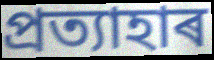
প্ৰত্যাহাৰ